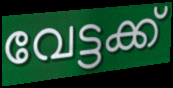
വേട്ടക്ക്